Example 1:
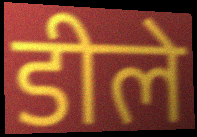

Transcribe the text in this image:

डीले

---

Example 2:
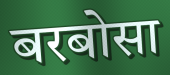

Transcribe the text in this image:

बरबोसा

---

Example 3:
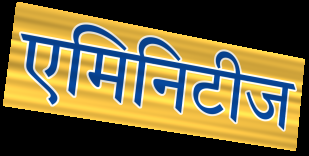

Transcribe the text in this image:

एमिनिटीज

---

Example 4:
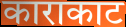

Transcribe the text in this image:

काराकाट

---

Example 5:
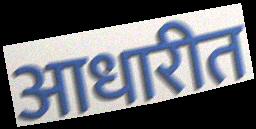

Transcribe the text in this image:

आधारीत